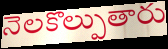
నెలకొల్పుతారు